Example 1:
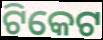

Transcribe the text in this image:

ଟିକେଟ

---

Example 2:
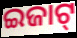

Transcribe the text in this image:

ଇଜାଟ୍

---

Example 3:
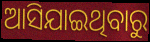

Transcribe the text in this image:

ଆସିଯାଇଥିବାରୁ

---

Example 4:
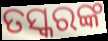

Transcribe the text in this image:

ତସ୍କରଙ୍କ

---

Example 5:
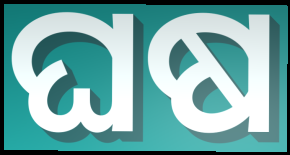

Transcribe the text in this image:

ଘଷ